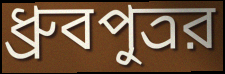
ধ্রুবপুত্রর